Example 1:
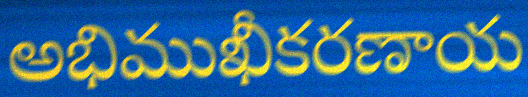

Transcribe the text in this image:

అభిముఖీకరణాయ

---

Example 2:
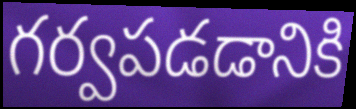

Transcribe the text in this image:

గర్వపడడానికి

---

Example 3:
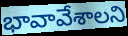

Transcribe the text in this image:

భావావేశాలని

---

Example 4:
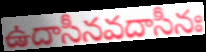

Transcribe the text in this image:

ఉదాసీనవదాసీనః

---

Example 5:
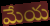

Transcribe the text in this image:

మేయ